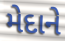
મેદાને